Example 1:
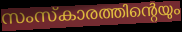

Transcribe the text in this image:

സംസ്‌കാരത്തിന്റെയും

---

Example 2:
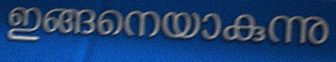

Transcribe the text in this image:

ഇങ്ങനെയാകുന്നു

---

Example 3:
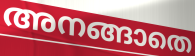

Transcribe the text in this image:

അനങ്ങാതെ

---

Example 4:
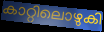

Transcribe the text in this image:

കാറ്റിലൊഴുകി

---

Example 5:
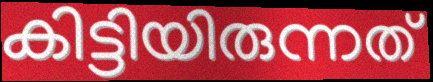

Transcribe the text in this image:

കിട്ടിയിരുന്നത്